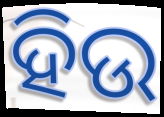
ହିଉ